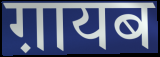
ग़ायब